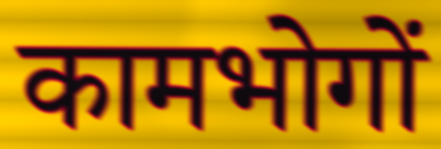
कामभोगों